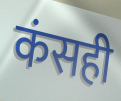
कंसही